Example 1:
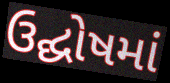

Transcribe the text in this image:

ઉદ્ઘોષમાં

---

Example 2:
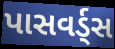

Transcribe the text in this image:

પાસવર્ડ્સ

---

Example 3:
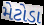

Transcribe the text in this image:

મેટોડા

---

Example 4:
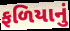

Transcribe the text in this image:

ફળિયાનું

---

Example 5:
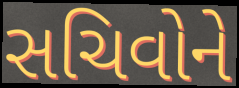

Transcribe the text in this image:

સચિવોને